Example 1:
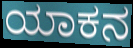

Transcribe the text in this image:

ಯಾಕನ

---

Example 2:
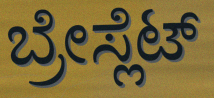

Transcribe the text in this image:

ಬ್ರೇಸ್ಲೆಟ್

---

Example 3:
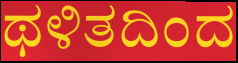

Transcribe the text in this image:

ಥಳಿತದಿಂದ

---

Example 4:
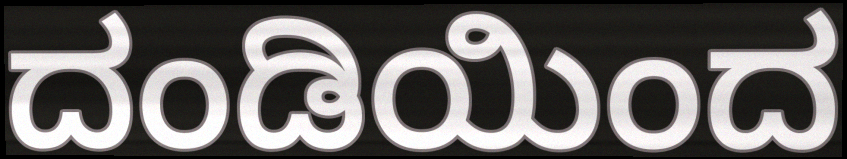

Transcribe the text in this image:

ದಂಡಿಯಿಂದ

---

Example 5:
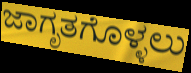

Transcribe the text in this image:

ಜಾಗೃತಗೊಳ್ಳಲು